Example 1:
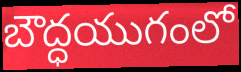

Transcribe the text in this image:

బౌద్ధయుగంలో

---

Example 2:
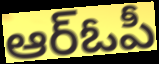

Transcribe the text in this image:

ఆర్ఓపీ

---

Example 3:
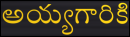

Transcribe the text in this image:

అయ్యగారికి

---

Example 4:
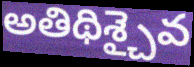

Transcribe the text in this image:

అతిథిశ్చైవ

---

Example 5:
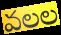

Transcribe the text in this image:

వలల